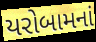
યરોબામનાં